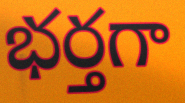
భర్తగా